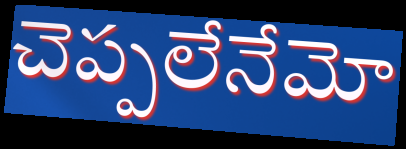
చెప్పలేనేమో